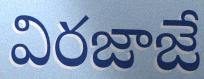
విరజాజే